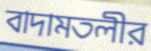
বাদামতলীর